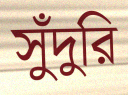
সুঁদুরি